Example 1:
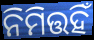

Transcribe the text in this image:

ନିମିତ୍ତହିଁ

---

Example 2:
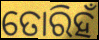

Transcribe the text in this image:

ତୋରିହଁ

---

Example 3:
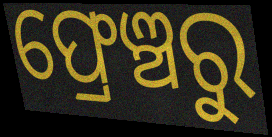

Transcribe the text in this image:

ଫ୍ରେଞ୍ଚରୁ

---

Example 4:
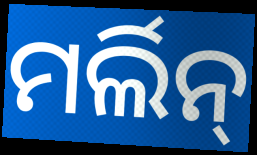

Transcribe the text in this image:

ମର୍ଲିନ୍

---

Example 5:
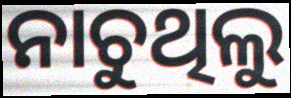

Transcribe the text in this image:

ନାଚୁଥିଲୁ